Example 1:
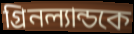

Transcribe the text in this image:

গ্রিনল্যান্ডকে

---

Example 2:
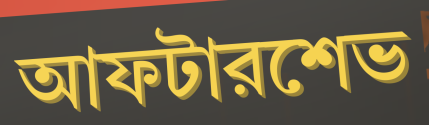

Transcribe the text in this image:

আফটারশেভ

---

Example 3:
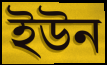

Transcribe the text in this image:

ইউন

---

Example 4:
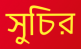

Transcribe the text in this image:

সুচির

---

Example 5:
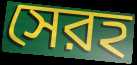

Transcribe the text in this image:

সেরহ